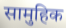
सामुहिक